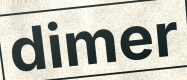
dimer